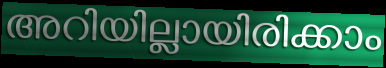
അറിയില്ലായിരിക്കാം